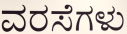
ವರಸೆಗಳು